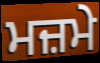
ਮਜ਼ਮੇ